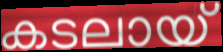
കടലായ്